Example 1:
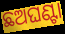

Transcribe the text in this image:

ଛଅଘଣ୍ଟା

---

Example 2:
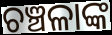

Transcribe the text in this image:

ଚଞ୍ଚଳାଙ୍କ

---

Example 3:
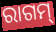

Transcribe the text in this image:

ରାଗମ୍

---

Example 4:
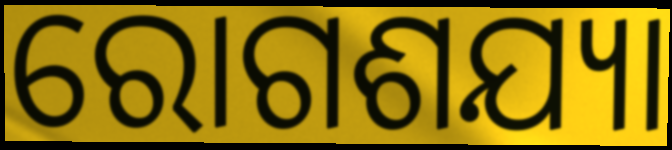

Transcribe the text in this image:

ରୋଗଶଯ୍ୟା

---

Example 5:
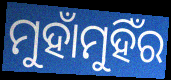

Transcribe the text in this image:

ମୁହାଁମୁହିଁର